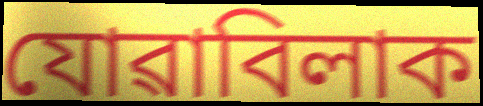
যোৱাবিলাক